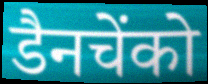
डैनचेंको